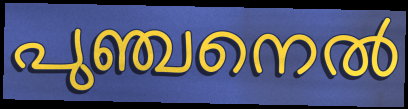
പുഞ്ചനെൽ